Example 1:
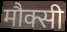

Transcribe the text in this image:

मौक्सी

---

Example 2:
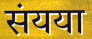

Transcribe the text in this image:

संयया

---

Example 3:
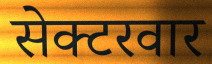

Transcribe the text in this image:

सेक्टरवार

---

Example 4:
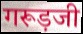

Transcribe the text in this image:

गरूड़जी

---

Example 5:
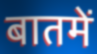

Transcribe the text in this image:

बातमें